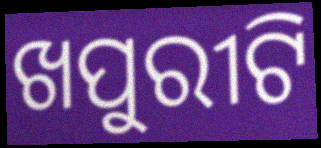
ଖପୁରୀଟି